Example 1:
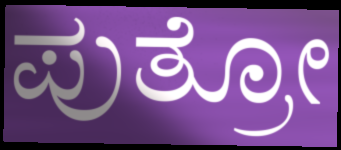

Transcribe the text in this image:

ಪುತ್ರೋ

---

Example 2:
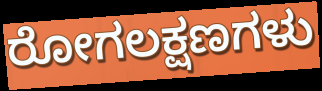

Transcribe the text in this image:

ರೋಗಲಕ್ಷಣಗಳು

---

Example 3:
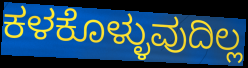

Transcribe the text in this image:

ಕಳಕೊಳ್ಳುವುದಿಲ್ಲ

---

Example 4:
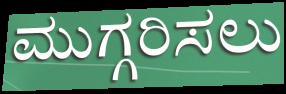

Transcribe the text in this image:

ಮುಗ್ಗರಿಸಲು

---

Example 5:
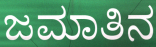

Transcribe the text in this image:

ಜಮಾತಿನ